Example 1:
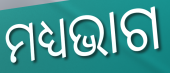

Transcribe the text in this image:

ମଧ୍ୟଭାଗ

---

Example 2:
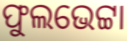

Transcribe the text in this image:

ଫୁଲଭେଟ୍ଟା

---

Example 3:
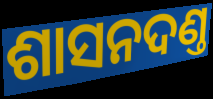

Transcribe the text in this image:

ଶାସନଦଣ୍ତ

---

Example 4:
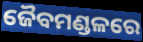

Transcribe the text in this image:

ଜୈବମଣ୍ଡଳରେ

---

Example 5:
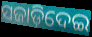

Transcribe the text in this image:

ସଜାଡ଼ିଦେଇ